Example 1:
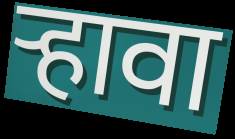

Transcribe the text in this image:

र्‍हावा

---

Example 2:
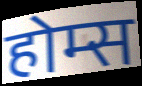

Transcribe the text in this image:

होम्स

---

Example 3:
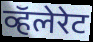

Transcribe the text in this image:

व्हॅलेरेट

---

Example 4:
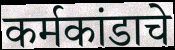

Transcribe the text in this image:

कर्मकांडाचे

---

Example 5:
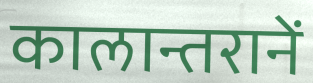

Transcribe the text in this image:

कालान्तरानें